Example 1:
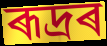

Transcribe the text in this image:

ৰূদ্ৰৰ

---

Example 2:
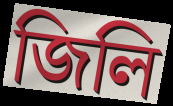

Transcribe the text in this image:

জিলি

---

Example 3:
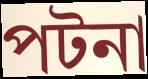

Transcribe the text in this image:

পটনা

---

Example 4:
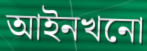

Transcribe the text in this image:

আইনখনো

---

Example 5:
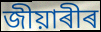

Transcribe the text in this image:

জীয়াৰীৰ